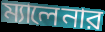
ম্যালেনার